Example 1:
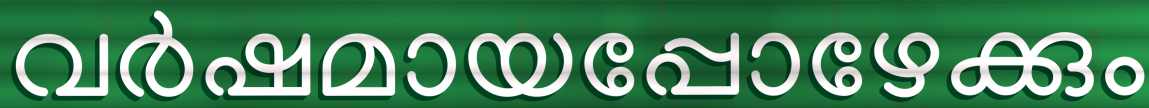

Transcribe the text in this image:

വർഷമായപ്പോഴേക്കും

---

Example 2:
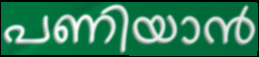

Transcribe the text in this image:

പണിയാൻ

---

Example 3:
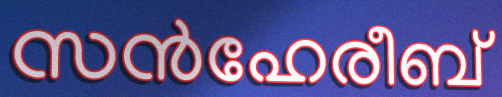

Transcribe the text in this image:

സൻഹേരീബ്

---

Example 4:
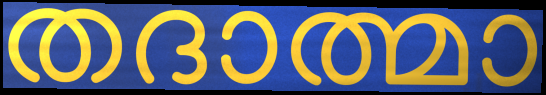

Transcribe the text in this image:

തദാത്മാ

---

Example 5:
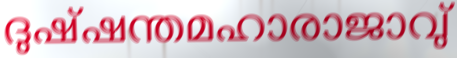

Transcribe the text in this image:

ദുഷ്ഷന്തമഹാരാജാവു്